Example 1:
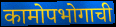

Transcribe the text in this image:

कामोपभोगाची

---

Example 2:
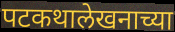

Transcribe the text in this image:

पटकथालेखनाच्या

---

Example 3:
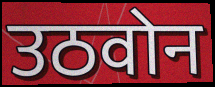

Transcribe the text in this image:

उठवोन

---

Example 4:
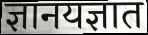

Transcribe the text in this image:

ज्ञानयज्ञात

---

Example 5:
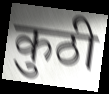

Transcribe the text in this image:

कुठी